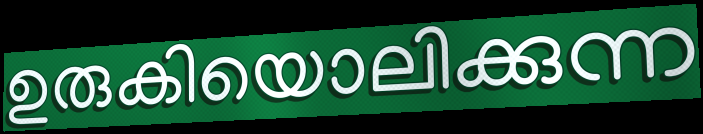
ഉരുകിയൊലിക്കുന്ന